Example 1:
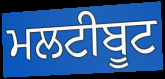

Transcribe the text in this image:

ਮਲਟੀਬੂਟ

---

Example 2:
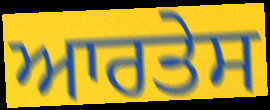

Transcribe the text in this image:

ਆਰਤੇਸ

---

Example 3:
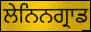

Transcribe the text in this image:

ਲੇਨਿਨਗ੍ਰਾਡ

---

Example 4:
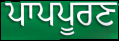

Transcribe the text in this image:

ਪਾਪਪੂਰਣ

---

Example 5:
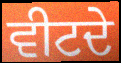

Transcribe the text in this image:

ਵੀਟਦੇ